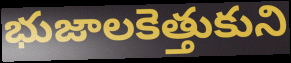
భుజాలకెత్తుకుని